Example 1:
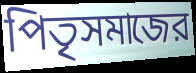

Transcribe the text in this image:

পিতৃসমাজের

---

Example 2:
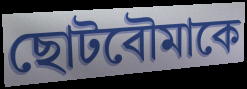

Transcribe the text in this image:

ছোটবৌমাকে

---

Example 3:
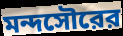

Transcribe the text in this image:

মন্দসৌরের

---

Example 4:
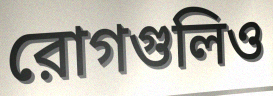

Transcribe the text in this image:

রোগগুলিও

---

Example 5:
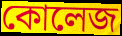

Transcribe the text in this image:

কোলেজ